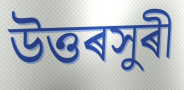
উত্তৰসুৰী